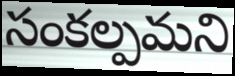
సంకల్పమని